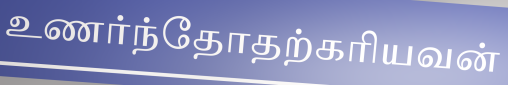
உணர்ந்தோதற்கரியவன்